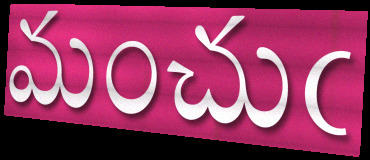
మంచుఁ